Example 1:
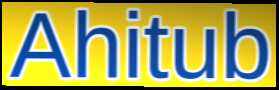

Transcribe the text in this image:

Ahitub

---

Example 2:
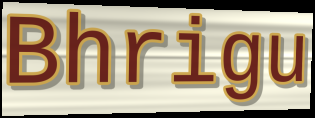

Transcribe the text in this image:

Bhrigu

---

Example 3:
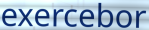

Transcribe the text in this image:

exercebor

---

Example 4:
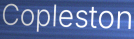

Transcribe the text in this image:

Copleston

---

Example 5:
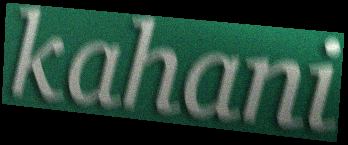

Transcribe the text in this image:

kahani